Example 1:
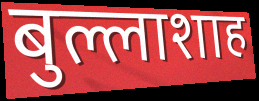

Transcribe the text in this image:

बुल्लाशाह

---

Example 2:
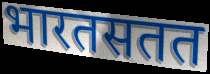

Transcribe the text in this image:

भारतसतत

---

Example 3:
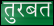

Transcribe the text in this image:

तुरबत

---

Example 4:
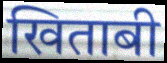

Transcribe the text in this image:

खिताबी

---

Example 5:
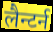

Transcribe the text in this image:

लैन्टर्न